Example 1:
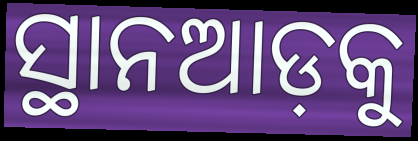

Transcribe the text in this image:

ସ୍ଥାନଆଡ଼କୁ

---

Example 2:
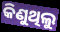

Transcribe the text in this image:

କିଣୁଥିଲୁ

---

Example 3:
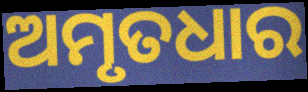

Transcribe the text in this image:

ଅମୃତଧାର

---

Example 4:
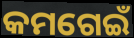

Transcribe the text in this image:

କମଗେଇଁ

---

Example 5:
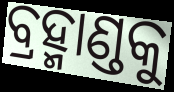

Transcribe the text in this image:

ବ୍ରହ୍ମାଣ୍ଡକୁ